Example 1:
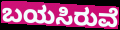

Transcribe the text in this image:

ಬಯಸಿರುವೆ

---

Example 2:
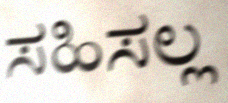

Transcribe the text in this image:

ಸಹಿಸಲ್ಲ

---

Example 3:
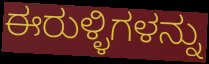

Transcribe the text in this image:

ಈರುಳ್ಳಿಗಳನ್ನು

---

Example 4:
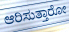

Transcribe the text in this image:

ಆರಿಸುತ್ತಾರೋ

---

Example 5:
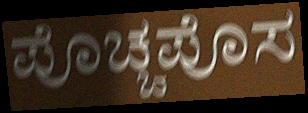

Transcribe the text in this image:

ಪೊಚ್ಚಪೊಸ